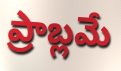
ప్రాబ్లమే